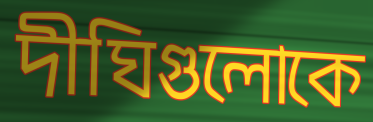
দীঘিগুলোকে